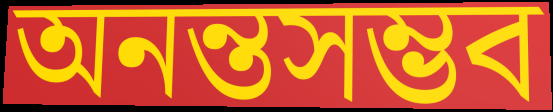
অনন্তসম্ভব